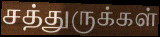
சத்துருக்கள்